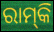
ରାମ୍‌କି